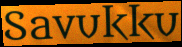
Savukku